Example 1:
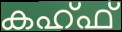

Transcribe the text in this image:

കഹ്ഫ്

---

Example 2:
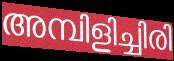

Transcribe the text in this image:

അമ്പിളിച്ചിരി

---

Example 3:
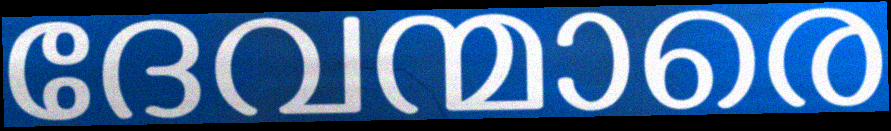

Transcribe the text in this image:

ദേവന്മാരെ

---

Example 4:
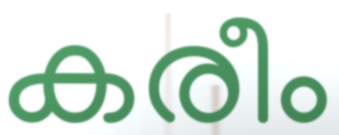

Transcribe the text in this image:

കരീം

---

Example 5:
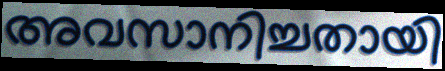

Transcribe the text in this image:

അവസാനിച്ചതായി